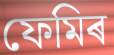
ফেমিৰ